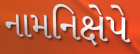
નામનિક્ષેપે